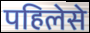
पहिलेसे